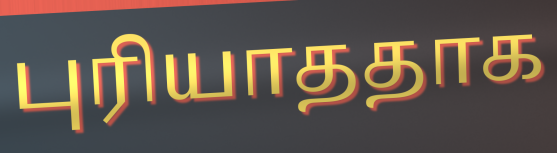
புரியாததாக